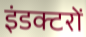
इंडक्टरों